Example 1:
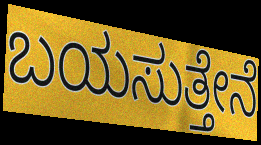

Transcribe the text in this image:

ಬಯಸುತ್ತೇನೆ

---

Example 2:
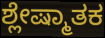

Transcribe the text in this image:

ಶ್ಲೇಷ್ಮಾತಕ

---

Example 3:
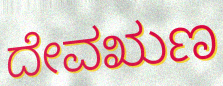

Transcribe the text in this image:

ದೇವಋಣ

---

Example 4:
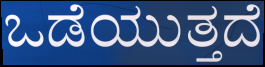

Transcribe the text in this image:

ಒಡೆಯುತ್ತದೆ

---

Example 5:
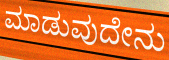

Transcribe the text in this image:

ಮಾಡುವುದೇನು